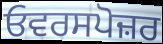
ਓਵਰਸਪੋਜ਼ਰ